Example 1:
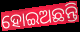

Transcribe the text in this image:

ହୋଇଅଛନ୍ତି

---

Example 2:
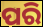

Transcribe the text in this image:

ପରି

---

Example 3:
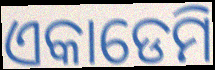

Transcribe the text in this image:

ଏକାଡେମି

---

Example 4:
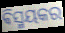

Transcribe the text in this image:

ଵିସ୍ମୟକର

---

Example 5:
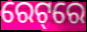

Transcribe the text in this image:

ରେଟ୍‌ରେ